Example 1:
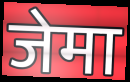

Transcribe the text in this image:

जेमा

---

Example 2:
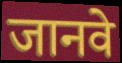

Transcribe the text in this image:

जानवे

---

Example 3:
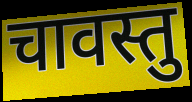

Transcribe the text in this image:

चावस्तु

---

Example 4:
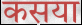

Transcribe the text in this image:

कसया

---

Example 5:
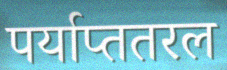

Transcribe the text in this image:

पर्याप्ततरल